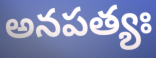
అనపత్యః